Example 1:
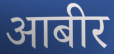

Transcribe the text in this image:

आबीर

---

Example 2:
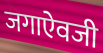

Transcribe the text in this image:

जगाऐवजी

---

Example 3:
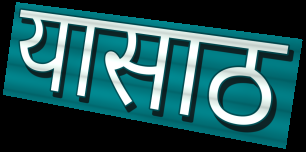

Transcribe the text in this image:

यासाठ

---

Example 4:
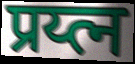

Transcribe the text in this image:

प्रय्त्न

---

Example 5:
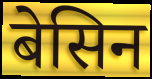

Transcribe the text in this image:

बेसिन